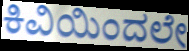
ಕಿವಿಯಿಂದಲೇ